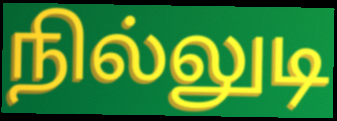
நில்லுடி